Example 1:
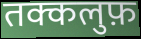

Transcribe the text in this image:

तक्कलुफ़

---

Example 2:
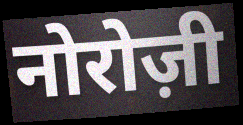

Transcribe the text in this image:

नोरोज़ी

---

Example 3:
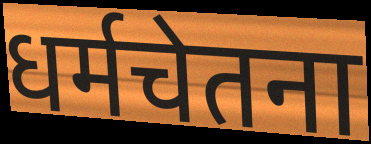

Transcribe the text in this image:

धर्मचेतना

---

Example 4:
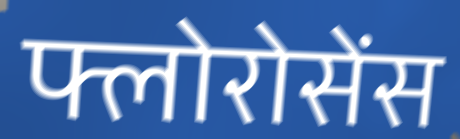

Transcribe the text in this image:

फ्लोरोसेंस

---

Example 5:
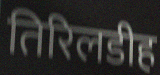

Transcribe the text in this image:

तिरिलडीह